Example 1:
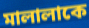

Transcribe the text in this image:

মালালাকে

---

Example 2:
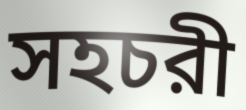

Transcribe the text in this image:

সহচরী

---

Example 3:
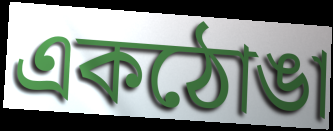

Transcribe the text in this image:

একঠোঙা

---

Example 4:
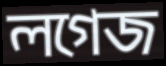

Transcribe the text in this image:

লগেজ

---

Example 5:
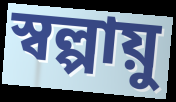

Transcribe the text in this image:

স্বল্পায়ু